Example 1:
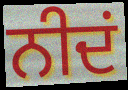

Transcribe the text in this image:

ਨੀਦਂ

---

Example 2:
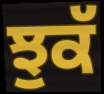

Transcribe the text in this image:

ਝੁਕੱ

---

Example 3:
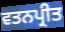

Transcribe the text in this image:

ਵਤਨਪ੍ਰੀਤ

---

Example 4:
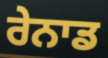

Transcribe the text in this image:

ਰੇਨਾਡ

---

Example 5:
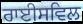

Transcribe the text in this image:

ਰਾਈਸਵਿਲ